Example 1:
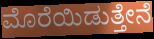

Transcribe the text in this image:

ಮೊರೆಯಿಡುತ್ತೇನೆ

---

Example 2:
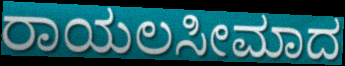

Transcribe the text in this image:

ರಾಯಲಸೀಮಾದ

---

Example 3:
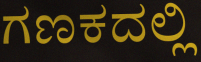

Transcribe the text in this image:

ಗಣಕದಲ್ಲಿ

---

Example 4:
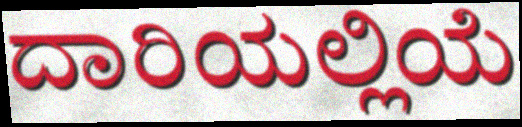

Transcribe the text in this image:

ದಾರಿಯಲ್ಲಿಯೆ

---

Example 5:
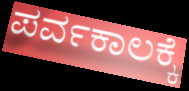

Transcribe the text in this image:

ಪರ್ವಕಾಲಕ್ಕೆ